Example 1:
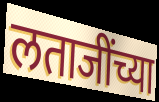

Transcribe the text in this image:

लताजींच्या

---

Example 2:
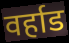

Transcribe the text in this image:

वर्हाड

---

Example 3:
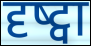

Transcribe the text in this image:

दृष्ट्वा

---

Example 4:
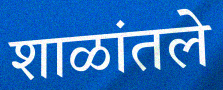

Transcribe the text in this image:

शाळांतले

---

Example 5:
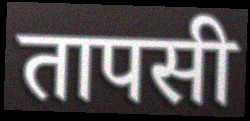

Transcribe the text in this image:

तापसी